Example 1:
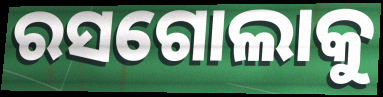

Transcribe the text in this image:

ରସଗୋଲାକୁ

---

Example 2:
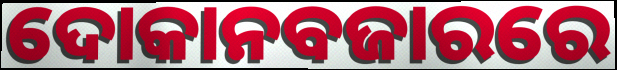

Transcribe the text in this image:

ଦୋକାନବଜାରରେ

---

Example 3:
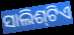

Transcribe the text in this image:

ସାଲିଶ୍‌ଟିଏ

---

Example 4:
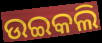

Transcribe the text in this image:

ଉଇକଲି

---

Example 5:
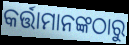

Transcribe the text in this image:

କର୍ତ୍ତାମାନଙ୍କଠାରୁ